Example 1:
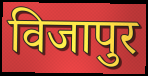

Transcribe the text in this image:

विजापुर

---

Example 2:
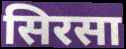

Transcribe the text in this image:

सिरसा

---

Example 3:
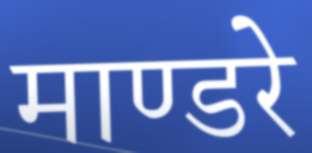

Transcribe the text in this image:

माण्डरे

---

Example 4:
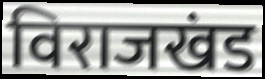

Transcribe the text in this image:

विराजखंड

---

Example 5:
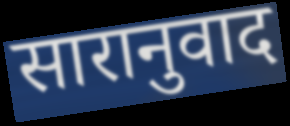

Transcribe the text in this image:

सारानुवाद